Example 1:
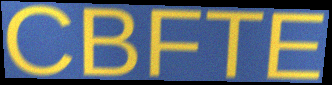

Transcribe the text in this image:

CBFTE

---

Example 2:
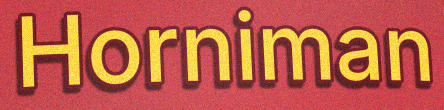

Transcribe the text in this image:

Horniman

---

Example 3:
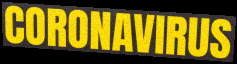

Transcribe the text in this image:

CORONAVIRUS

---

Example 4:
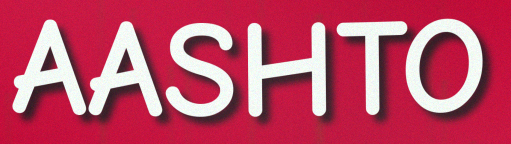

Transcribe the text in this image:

AASHTO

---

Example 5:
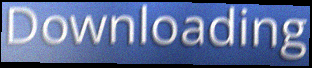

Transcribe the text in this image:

Downloading